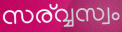
സര്വ്വസ്വം